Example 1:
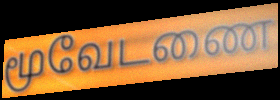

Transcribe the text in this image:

மூவேடணை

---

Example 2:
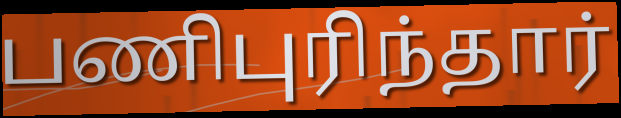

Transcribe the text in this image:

பணிபுரிந்தார்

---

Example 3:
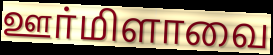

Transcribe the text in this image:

ஊர்மிளாவை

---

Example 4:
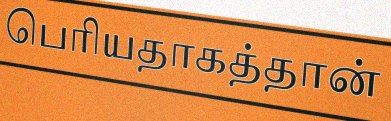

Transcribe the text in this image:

பெரியதாகத்தான்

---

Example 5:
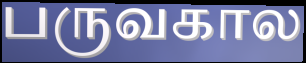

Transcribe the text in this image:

பருவகால